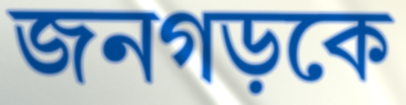
জনগড়কে